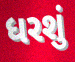
ધરશું